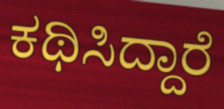
ಕಥಿಸಿದ್ದಾರೆ